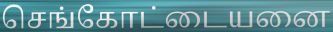
செங்கோட்டையனை